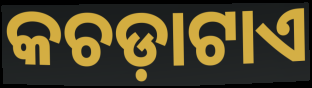
କଚଡ଼ାଟାଏ